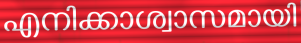
എനിക്കാശ്വാസമായി